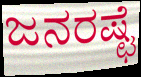
ಜನರಷ್ಟೆ